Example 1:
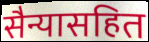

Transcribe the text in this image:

सैन्यासहित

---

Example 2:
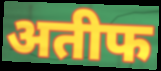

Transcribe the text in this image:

अतीफ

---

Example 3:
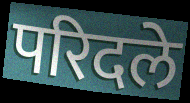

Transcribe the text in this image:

परिदले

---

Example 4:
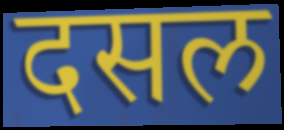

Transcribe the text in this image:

दसल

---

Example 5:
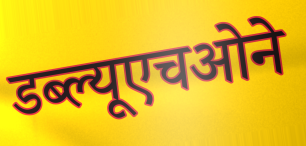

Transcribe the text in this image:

डब्ल्यूएचओने